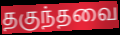
தகுந்தவை